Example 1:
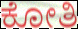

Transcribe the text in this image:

ಕೋತಿ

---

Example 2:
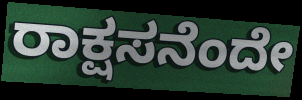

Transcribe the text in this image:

ರಾಕ್ಷಸನೆಂದೇ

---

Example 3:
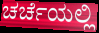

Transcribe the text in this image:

ಚರ್ಚೆಯಲ್ಲಿ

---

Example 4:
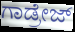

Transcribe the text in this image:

ಗಾಡ್ರೇಜ್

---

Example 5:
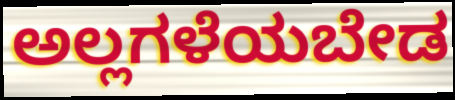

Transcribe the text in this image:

ಅಲ್ಲಗಳೆಯಬೇಡ